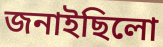
জনাইছিলো